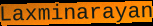
Laxminarayan